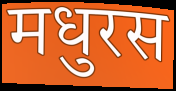
मधुरस